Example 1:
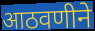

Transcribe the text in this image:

आठवणीने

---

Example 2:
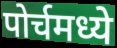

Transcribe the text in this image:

पोर्चमध्ये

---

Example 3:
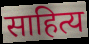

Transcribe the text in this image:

साहित्य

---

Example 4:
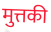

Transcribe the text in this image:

मुत्तकी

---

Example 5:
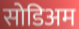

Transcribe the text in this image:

सोडिअम